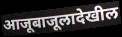
आजूबाजूलादेखील